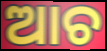
ଆଚ